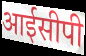
आईसीपी